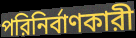
পরিনির্বাণকারী